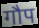
गौप